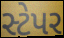
સ્ટેપર